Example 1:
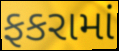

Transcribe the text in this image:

ફકરામાં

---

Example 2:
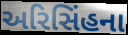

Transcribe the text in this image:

અરિસિંહના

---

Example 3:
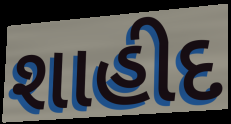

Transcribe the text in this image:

શાહીદ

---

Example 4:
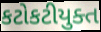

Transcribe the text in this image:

કટોકટીયુક્ત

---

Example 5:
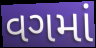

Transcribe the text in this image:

વગમાં